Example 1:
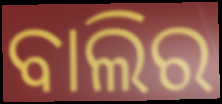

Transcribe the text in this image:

ବାଲିର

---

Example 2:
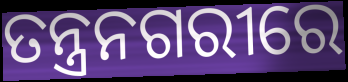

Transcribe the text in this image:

ତନ୍ତ୍ରନଗରୀରେ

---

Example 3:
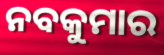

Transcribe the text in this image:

ନବକୁମାର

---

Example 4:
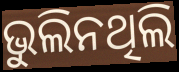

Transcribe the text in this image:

ଭୁଲିନଥିଲି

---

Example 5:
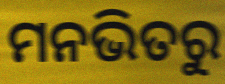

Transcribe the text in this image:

ମନଭିତରୁ